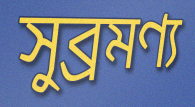
সুব্রমণ্য